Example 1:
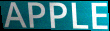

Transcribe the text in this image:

APPLE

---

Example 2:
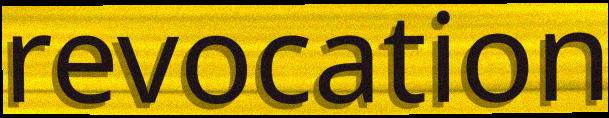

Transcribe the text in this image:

revocation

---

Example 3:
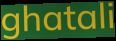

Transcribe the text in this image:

ghatali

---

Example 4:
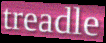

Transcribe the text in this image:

treadle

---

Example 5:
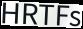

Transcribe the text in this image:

HRTFs